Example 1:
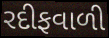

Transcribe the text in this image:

રદીફવાળી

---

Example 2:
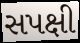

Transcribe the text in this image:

સપક્ષી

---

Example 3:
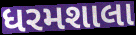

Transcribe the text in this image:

ધરમશાલા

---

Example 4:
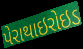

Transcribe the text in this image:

પેરાથાઇરોઇડ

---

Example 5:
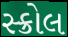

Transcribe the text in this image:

સ્ક્રોલ